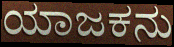
ಯಾಜಕನು